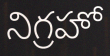
నిగ్రహో